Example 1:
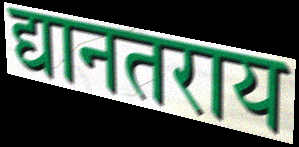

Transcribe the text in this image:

द्यानतराय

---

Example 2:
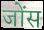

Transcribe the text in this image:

जोंस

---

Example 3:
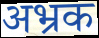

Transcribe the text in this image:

अभ्रक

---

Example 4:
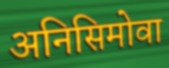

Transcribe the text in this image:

अनिसिमोवा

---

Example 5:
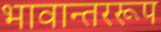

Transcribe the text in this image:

भावान्तररूप